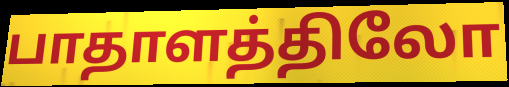
பாதாளத்திலோ